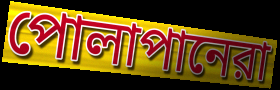
পোলাপানেরা